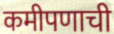
कमीपणाची